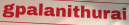
gpalanithurai